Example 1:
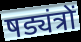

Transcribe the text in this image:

षड्यंत्रों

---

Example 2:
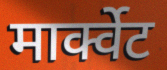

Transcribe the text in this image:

मार्क्वेट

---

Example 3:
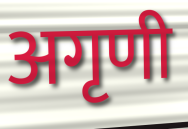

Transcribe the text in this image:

अगृणी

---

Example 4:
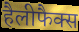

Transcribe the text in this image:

हैलीफैक्स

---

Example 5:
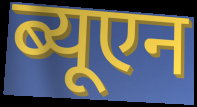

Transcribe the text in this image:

ब्यूएन